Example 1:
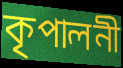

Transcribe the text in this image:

কৃপালনী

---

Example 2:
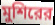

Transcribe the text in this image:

মুশিরের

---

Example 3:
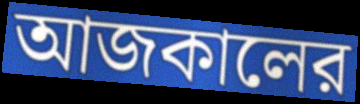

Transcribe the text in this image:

আজকালের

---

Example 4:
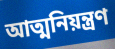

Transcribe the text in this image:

আত্মনিয়ন্ত্রণ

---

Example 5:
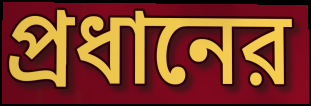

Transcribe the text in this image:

প্রধানের